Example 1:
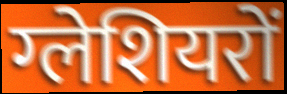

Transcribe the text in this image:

ग्‍लेशियरों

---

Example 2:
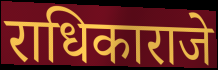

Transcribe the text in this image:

राधिकाराजे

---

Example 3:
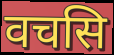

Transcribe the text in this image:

वचसि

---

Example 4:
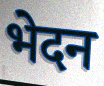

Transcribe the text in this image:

भेदन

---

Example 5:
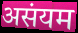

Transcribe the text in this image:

असंयम